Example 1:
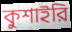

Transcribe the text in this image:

কুশাইরি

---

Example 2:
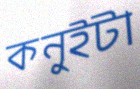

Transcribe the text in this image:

কনুইটা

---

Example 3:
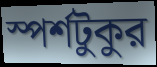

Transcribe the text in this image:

স্পর্শটুকুর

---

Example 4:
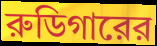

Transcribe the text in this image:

রুডিগারের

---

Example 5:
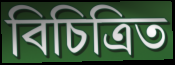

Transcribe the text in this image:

বিচিত্রিত